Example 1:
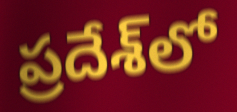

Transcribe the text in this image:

ప్రదేశ్‌లో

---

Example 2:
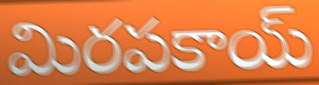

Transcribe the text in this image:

మిరపకాయ్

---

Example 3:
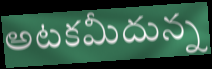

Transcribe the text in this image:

అటకమీదున్న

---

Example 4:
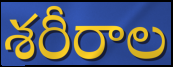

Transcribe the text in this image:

శరీరాల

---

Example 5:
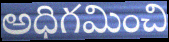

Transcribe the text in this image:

అధిగమించి